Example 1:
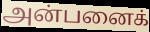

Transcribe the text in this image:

அன்பனைக்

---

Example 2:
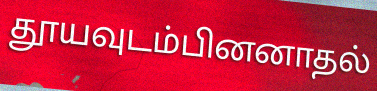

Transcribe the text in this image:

தூயவுடம்பினனாதல்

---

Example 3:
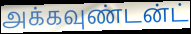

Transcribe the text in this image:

அக்கவுண்டன்ட்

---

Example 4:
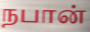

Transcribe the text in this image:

நபான்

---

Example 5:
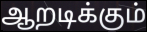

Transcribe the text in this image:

ஆறடிக்கும்